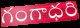
గంగాధరి